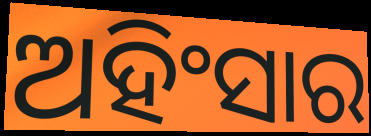
ଅହିଂସାର